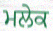
ਮਲੇਕ